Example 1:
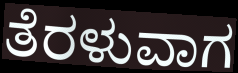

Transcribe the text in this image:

ತೆರಳುವಾಗ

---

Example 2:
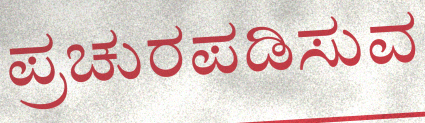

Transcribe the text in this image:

ಪ್ರಚುರಪಡಿಸುವ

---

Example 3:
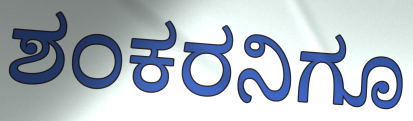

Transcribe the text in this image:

ಶಂಕರನಿಗೂ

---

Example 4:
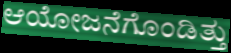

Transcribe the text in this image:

ಆಯೋಜನೆಗೊಂಡಿತ್ತು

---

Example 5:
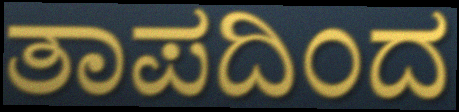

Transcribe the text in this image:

ತಾಪದಿಂದ